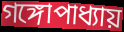
গঙ্গোপাধ্যায়